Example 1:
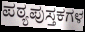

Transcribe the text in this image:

ಪಠ್ಯಪುಸ್ತಕಗಳ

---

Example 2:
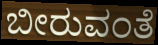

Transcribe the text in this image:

ಬೀರುವಂತೆ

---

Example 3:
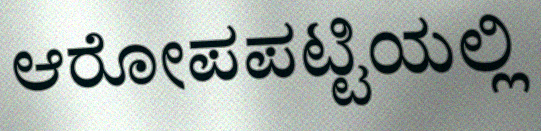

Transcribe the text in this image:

ಆರೋಪಪಟ್ಟಿಯಲ್ಲಿ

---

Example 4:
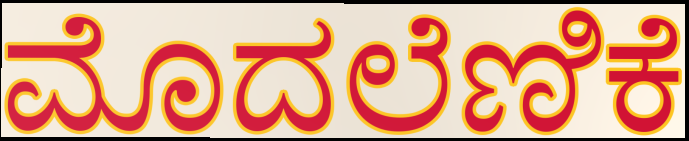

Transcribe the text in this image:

ಮೊದಲೆಣಿಕೆ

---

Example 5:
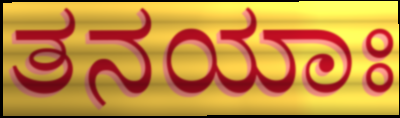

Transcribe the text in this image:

ತನಯಾಃ